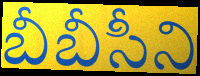
బీబీసీని